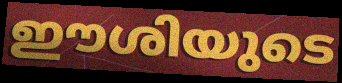
ഈശിയുടെ